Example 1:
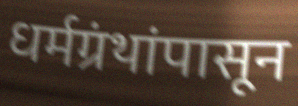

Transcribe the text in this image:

धर्मग्रंथांपासून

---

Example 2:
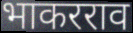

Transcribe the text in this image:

भाकरराव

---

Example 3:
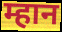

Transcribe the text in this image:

म्हान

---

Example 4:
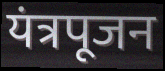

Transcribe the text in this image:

यंत्रपूजन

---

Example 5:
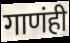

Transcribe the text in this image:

गाणंही